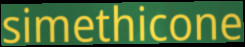
simethicone